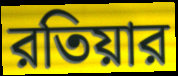
রতিয়ার